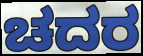
ಚದರ